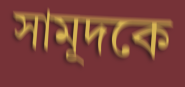
সামূদকে